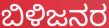
ಬಿಳಿಜನರ